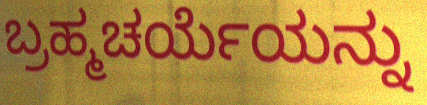
ಬ್ರಹ್ಮಚರ್ಯೆಯನ್ನು